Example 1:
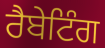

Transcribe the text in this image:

ਰੈਬੇਟਿੰਗ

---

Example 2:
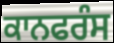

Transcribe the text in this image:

ਕਾਨਫਰੰਸ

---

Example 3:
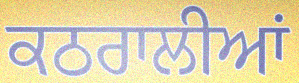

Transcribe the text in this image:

ਕਠਰਾਲੀਆਂ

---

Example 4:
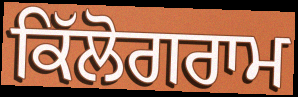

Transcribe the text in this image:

ਕਿੱਲੋਗਰਾਮ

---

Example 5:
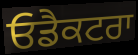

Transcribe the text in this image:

ਓਡੈਕਟਰਾ